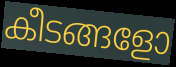
കീടങ്ങളോ